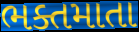
ભક્તમાતા